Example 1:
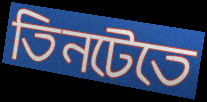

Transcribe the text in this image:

তিনটেতে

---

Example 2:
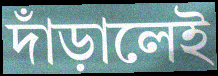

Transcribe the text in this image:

দাঁড়ালেই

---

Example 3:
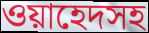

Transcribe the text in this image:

ওয়াহেদসহ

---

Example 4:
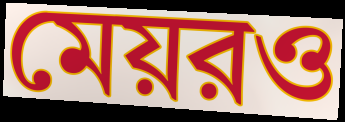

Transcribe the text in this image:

মেয়রও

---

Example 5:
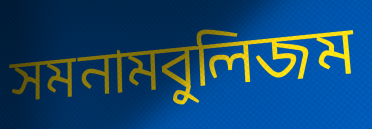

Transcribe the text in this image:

সমনামবুলিজম